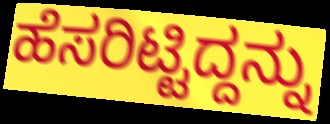
ಹೆಸರಿಟ್ಟಿದ್ದನ್ನು